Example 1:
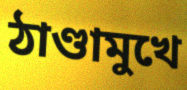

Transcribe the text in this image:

ঠাণ্ডামুখে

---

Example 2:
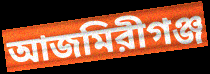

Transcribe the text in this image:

আজমিরীগঞ্জ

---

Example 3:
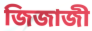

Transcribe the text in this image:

জিজাজী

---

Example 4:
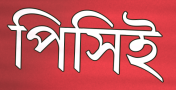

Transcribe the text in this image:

পিসিই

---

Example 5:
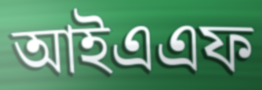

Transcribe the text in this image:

আইএএফ